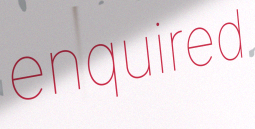
enquired